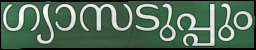
ഗ്യാസടുപ്പും